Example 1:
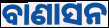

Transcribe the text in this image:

ବାଣାସନ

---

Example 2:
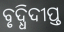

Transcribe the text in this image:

ବୃଦ୍ଧିଦୀପ୍ତ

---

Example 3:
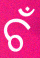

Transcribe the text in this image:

ଚଁ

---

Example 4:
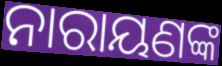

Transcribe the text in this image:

ନାରାୟଣଙ୍କ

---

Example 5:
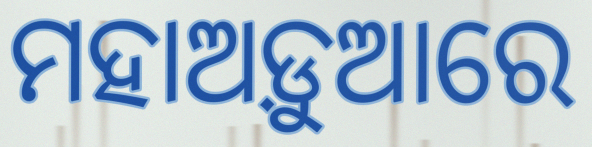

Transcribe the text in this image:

ମହାଅଡ଼ୁଆରେ